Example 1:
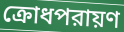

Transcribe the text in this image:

ক্রোধপরায়ণ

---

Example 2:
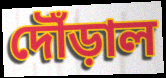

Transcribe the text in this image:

দৌঁড়াল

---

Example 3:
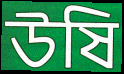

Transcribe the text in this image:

উষি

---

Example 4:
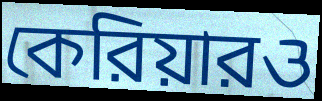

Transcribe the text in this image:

কেরিয়ারও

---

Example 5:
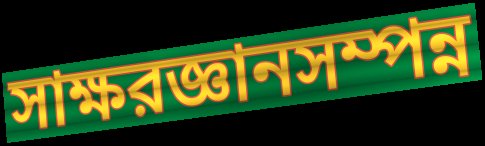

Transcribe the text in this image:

সাক্ষরজ্ঞানসম্পন্ন